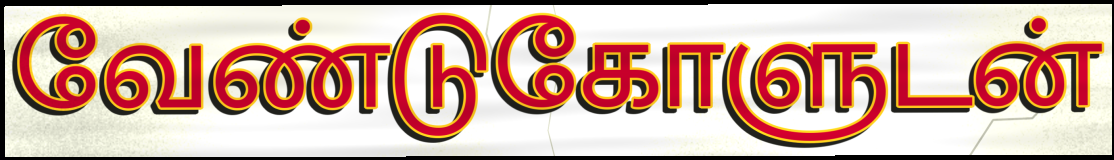
வேண்டுகோளுடன்